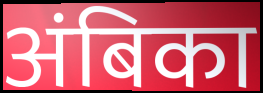
अंबिका